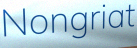
Nongriat